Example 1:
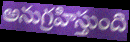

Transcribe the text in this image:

అనుగ్రహిస్తుంది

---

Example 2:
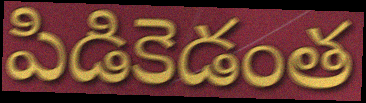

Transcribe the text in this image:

పిడికెడంత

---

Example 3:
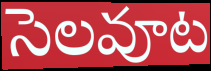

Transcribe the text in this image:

సెలవూట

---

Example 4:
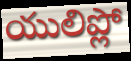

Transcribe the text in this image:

యులిప్లో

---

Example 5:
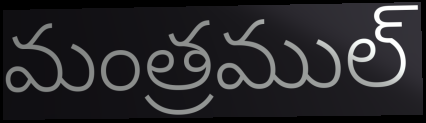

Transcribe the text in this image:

మంత్రముల్